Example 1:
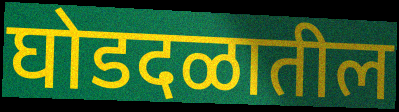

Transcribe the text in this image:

घोडदळातील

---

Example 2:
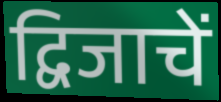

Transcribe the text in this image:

द्विजाचें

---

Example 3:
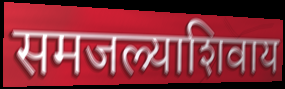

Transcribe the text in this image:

समजल्याशिवाय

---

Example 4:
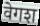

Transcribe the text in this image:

वेगश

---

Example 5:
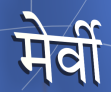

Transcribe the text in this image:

मेर्वी